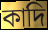
কাদি